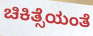
ಚಿಕಿತ್ಸೆಯಂತೆ